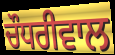
ਚੌਧਰੀਵਾਲ